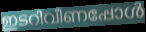
ഇടറിവീണപ്പോൾ